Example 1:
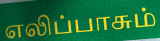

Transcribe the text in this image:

எலிப்பாசும்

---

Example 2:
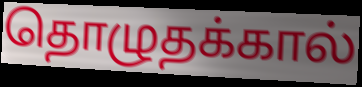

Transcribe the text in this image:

தொழுதக்கால்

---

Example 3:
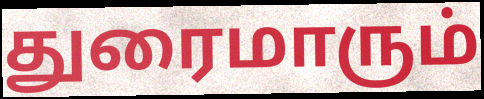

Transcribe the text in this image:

துரைமாரும்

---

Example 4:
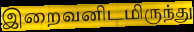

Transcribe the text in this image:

இறைவனிடமிருந்து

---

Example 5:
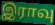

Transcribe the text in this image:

இராவு